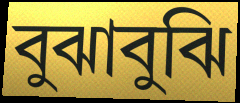
বুঝাবুঝি